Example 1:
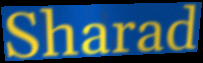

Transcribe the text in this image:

Sharad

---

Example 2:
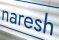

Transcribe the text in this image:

naresh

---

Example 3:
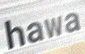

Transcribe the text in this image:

hawa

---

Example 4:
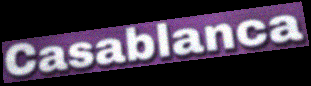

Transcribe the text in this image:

Casablanca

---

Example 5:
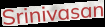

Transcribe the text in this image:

Srinivasan